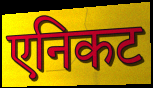
एनिकट